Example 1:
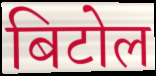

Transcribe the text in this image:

बिटोल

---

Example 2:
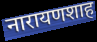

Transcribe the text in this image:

नारायणशाह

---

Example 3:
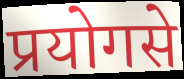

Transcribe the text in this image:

प्रयोगसे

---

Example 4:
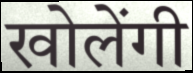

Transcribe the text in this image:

खोलेंगी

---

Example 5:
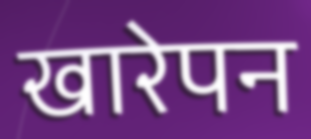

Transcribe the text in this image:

खारेपन